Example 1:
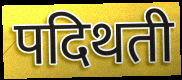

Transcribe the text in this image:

पदिथती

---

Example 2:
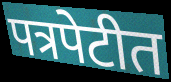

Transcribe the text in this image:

पत्रपेटीत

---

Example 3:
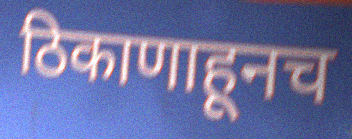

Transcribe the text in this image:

ठिकाणाहूनच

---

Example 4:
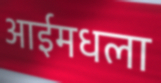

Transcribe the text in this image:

आईमधला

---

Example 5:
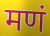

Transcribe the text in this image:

मणं